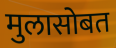
मुलासोबत